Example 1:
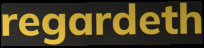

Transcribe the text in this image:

regardeth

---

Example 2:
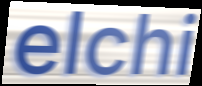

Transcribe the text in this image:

elchi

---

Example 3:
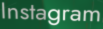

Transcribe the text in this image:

Instagram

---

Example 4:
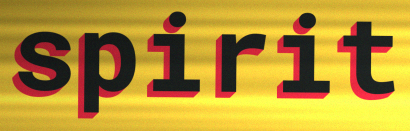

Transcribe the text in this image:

spirit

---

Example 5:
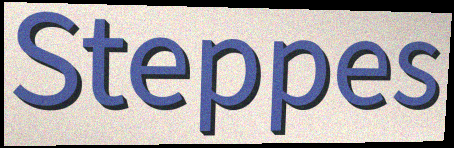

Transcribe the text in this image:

Steppes